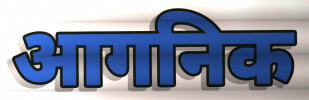
आगनिक